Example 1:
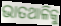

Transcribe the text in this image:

ଭାତଥାଳିକୁ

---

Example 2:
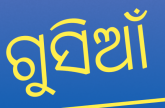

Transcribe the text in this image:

ଗୁସିଆଁ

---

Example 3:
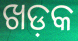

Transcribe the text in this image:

ଖଡ଼କ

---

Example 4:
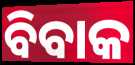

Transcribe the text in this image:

ବିବାକ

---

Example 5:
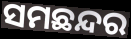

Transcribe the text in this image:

ସମଛନ୍ଦର